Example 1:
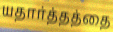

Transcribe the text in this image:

யதார்த்தத்தை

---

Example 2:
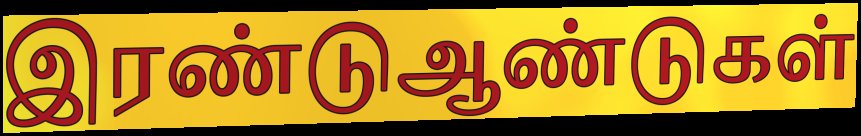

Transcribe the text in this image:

இரண்டுஆண்டுகள்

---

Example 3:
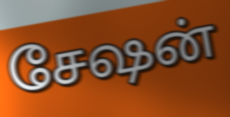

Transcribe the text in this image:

சேஷன்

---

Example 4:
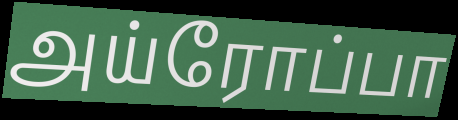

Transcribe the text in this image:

அய்ரோப்பா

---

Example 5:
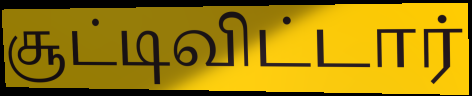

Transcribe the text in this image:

சூட்டிவிட்டார்